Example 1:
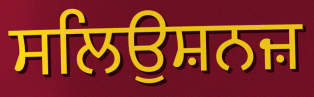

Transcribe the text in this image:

ਸਲਿਉਸ਼ਨਜ਼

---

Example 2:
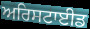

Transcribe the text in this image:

ਅਰਿਸਟਾਈਡ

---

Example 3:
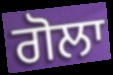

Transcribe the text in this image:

ਗੋਲਾ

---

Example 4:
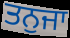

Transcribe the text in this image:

ਤਨੁਜਾ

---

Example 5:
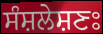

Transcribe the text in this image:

ਸੰਸ਼ਲੇਸ਼ਣਃ